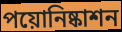
পয়োনিষ্কাশন